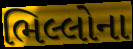
ભિલ્લોના